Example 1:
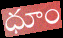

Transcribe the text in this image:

ధూం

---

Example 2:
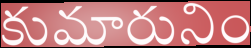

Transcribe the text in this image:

కుమారునిం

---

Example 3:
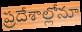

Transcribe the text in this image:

ప్రదేశాల్లోనూ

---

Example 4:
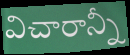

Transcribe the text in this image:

విచారాన్నీ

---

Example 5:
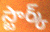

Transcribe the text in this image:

స్టార్క్